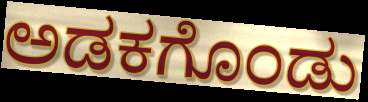
ಅಡಕಗೊಂಡು